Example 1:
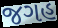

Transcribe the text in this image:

જગહ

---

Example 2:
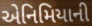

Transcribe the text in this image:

એનિમિયાની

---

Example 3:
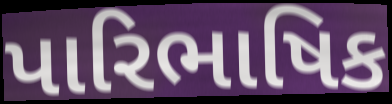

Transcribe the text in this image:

પારિભાષિક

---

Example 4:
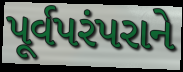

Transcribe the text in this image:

પૂર્વપરંપરાને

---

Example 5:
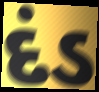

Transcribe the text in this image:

દંડ